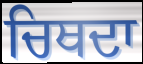
ਚਿਥਦਾ